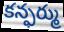
కన్ఫర్ము